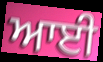
ਆਈ